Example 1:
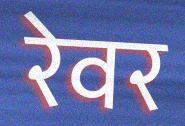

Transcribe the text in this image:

रेवर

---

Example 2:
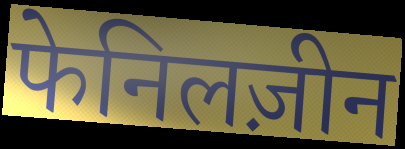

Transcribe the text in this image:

फेनिलज़ीन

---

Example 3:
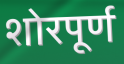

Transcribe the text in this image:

शोरपूर्ण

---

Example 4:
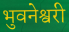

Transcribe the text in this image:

भुवनेश्वरी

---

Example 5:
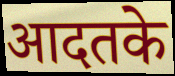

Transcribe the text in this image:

आदतके